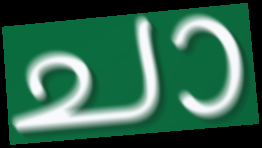
ചാ